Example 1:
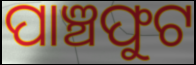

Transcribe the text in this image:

ପାଞ୍ଚଫୁଟ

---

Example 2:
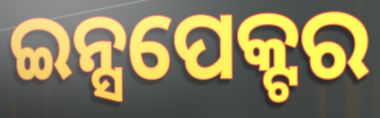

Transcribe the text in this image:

ଇନ୍ସପେକ୍ଟର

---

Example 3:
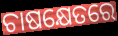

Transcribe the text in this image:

ଚାଷକ୍ଷେତରେ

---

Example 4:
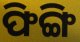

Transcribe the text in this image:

ଫିଙ୍ଗି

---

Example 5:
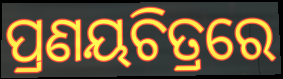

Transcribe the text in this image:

ପ୍ରଣୟଚିତ୍ରରେ